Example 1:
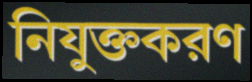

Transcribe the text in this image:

নিযুক্তকরণ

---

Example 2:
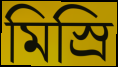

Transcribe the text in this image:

মিস্রি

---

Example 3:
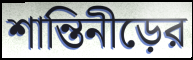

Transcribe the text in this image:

শান্তিনীড়ের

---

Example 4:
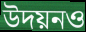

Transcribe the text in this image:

উদয়নও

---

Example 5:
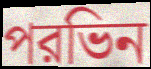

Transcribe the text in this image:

পরভিন